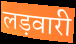
लड़वारी